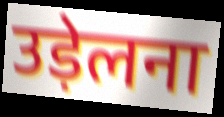
उड़ेलना